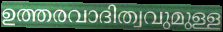
ഉത്തരവാദിത്വവുമുള്ള